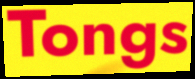
Tongs